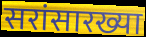
सरांसारख्या